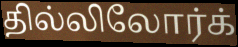
தில்லிலோர்க்